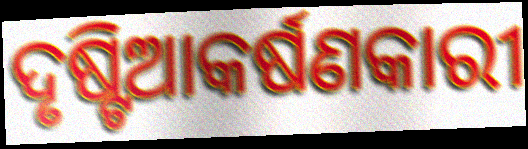
ଦୃଷ୍ଟିଆକର୍ଷଣକାରୀ